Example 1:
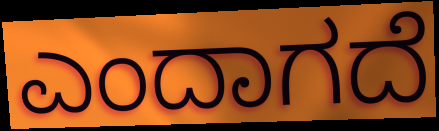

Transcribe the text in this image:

ಎಂದಾಗದೆ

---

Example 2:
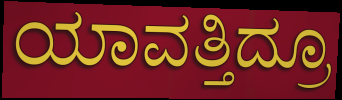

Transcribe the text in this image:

ಯಾವತ್ತಿದ್ರೂ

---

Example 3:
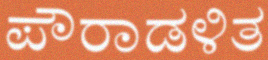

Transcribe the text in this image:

ಪೌರಾಡಳಿತ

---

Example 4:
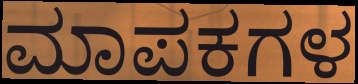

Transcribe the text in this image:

ಮಾಪಕಗಳ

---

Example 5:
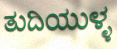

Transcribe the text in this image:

ತುದಿಯುಳ್ಳ